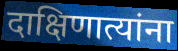
दाक्षिणात्यांना